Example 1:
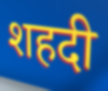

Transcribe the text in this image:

शहदी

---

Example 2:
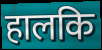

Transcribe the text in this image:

हालकि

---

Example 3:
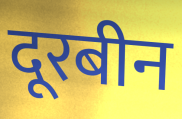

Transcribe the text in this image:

दूरबीन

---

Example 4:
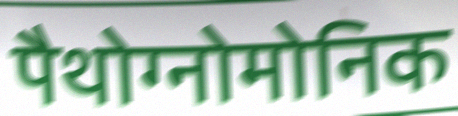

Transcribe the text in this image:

पैथोग्नोमोनिक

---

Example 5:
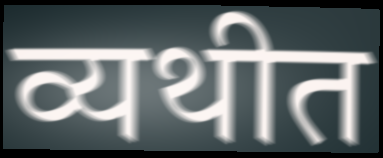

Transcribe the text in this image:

व्यथीत